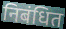
निबंधित